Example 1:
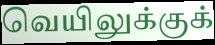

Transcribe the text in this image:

வெயிலுக்குக்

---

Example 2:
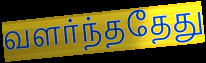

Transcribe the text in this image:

வளர்ந்ததேது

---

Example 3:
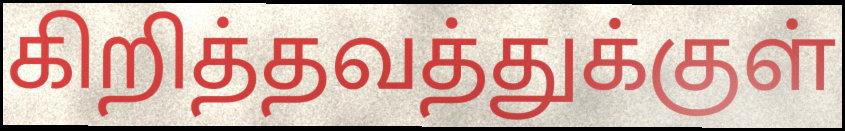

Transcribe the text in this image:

கிறித்தவத்துக்குள்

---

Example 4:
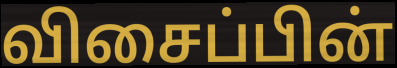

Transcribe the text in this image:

விசைப்பின்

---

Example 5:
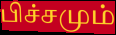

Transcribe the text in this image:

பிச்சமும்